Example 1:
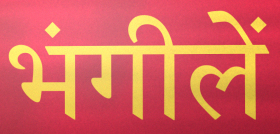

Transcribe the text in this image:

भंगीलें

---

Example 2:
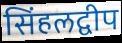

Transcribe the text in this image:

सिंहलद्वीप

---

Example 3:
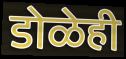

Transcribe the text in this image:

डोळेही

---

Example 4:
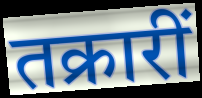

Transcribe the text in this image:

तक्रारीं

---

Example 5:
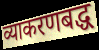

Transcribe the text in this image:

व्याकरणबद्ध